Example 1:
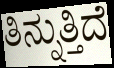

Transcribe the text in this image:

ತಿನ್ನುತ್ತಿದೆ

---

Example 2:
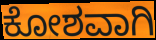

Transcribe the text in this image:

ಕೋಶವಾಗಿ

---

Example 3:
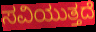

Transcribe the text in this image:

ಸವಿಯುತ್ತದೆ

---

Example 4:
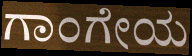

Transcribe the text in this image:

ಗಾಂಗೇಯ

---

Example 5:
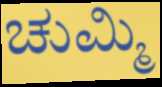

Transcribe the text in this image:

ಚುಮ್ಮಿ